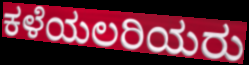
ಕಳೆಯಲರಿಯರು